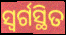
ସ୍ୱର୍ଗସ୍ଥିତ